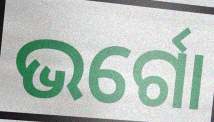
ଭର୍ଗୋ